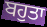
ਬਹੁਤਾ